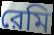
রেমি